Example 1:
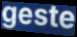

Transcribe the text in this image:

geste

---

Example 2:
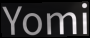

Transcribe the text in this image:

Yomi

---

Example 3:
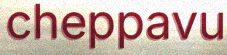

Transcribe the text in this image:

cheppavu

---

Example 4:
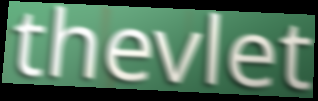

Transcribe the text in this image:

thevlet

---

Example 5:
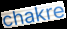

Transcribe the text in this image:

chakre